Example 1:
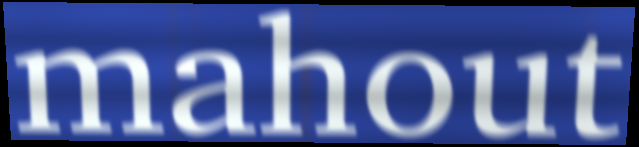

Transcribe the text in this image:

mahout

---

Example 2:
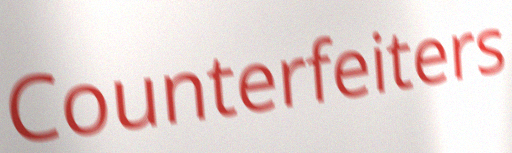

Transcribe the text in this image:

Counterfeiters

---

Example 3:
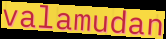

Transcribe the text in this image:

valamudan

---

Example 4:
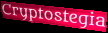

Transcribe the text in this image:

Cryptostegia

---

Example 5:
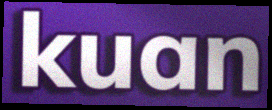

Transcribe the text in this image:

kuan